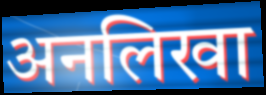
अनलिखा